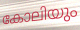
കോലിയും